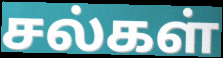
சல்கள்